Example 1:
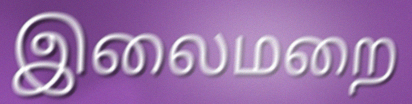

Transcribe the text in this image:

இலைமறை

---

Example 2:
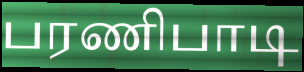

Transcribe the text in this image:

பரணிபாடி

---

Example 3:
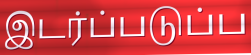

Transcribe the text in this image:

இடர்ப்படுப்ப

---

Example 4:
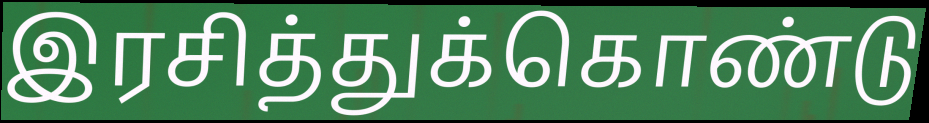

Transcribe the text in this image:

இரசித்துக்கொண்டு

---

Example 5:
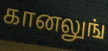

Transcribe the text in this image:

கானலுங்